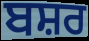
ਬਸ਼ਰ